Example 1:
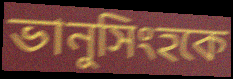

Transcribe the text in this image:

ভানুসিংহকে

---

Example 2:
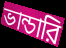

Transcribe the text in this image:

ভান্ডারি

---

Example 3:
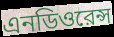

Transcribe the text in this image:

এনডিওরেন্স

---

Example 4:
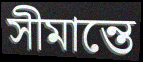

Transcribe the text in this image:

সীমান্তে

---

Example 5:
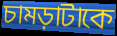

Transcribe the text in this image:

চামড়াটাকে